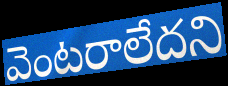
వెంటరాలేదని